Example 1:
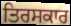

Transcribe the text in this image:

ਤਿਰਸਕਾਰ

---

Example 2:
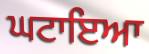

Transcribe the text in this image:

ਘਟਾਇਆ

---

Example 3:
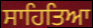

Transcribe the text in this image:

ਸਾਹਿਤਿਆ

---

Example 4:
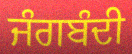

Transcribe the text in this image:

ਜੰਗਬੰਦੀ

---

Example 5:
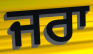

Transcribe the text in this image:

ਜਰਾ